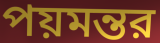
পয়মন্তর